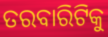
ତରବାରିଟିକୁ